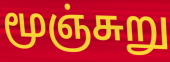
மூஞ்சுறு